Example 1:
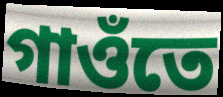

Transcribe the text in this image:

গাওঁতে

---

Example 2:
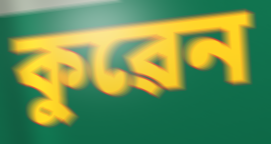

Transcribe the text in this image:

কুৱেন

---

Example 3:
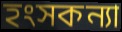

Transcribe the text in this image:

হংসকন্যা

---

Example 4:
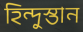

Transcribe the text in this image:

হিন্দুস্তান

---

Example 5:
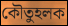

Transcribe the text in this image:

কৌতুহলক